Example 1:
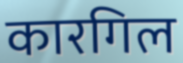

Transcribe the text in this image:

कारगिल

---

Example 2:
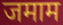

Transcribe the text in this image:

जमाम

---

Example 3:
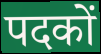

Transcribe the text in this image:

पदकों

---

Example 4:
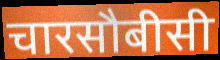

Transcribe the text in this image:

चारसौबीसी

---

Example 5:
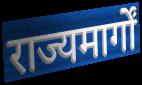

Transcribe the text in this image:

राज्यमार्गों